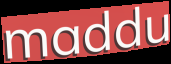
maddu